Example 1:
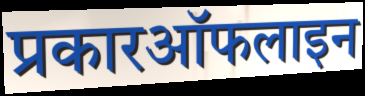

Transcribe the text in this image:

प्रकारऑफलाइन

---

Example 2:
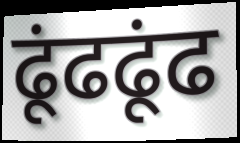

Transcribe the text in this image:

ढूंढढूंढ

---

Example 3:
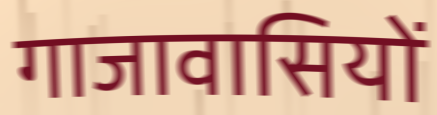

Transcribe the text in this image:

गाजावासियों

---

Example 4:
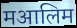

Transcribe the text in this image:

मआलिम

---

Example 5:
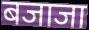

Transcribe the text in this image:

बजाजा